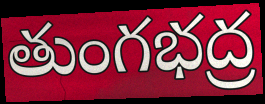
తుంగభద్ర